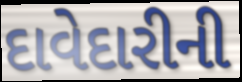
દાવેદારીની